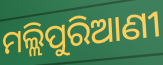
ମଲ୍ଲିପୁରିଆଣୀ